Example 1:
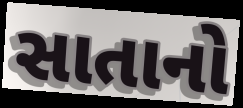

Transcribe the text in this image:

સાતાનો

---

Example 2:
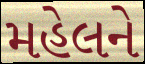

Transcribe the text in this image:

મહેલને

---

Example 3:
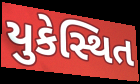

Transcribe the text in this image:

યુકેસ્થિત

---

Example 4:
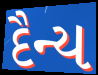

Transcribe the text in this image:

દૈન્ય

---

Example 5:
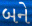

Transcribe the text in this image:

બને